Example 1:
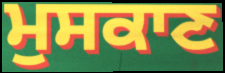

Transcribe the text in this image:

ਮੁਸਕਾਣ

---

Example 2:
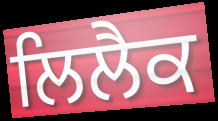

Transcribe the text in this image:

ਲਿਲੈਕ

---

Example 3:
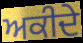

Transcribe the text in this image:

ਅਕੀਦੇ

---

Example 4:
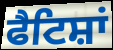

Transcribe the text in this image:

ਫੈਟਿਸ਼ਾਂ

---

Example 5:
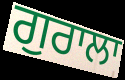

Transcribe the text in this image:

ਗੁਰਾਲਾ